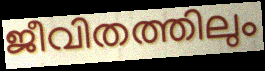
ജീവിതത്തിലും